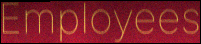
Employees